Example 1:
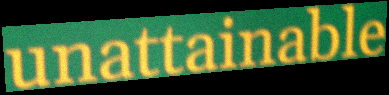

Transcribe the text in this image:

unattainable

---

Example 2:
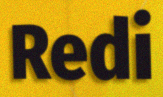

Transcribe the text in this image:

Redi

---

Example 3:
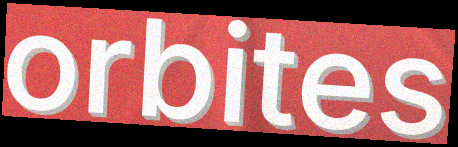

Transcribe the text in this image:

orbites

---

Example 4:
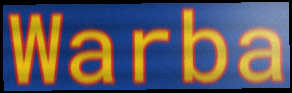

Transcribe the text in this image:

Warba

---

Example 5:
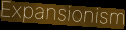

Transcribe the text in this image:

Expansionism